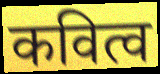
कवित्व